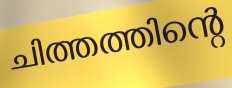
ചിത്തത്തിന്റെ